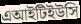
এআইটিইউসি